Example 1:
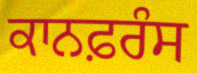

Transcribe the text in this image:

ਕਾਨਫ਼ਰੰਸ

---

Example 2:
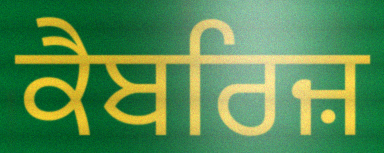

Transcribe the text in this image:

ਕੈਬਰਿਜ਼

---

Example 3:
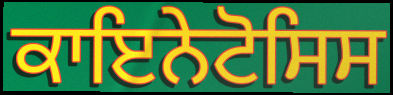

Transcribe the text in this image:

ਕਾਇਨੇਟੋਸਿਸ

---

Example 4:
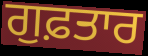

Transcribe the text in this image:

ਗੁਫ਼ਤਾਰ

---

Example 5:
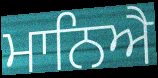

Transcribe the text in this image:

ਮਾਨਿਐ